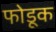
फोडूक